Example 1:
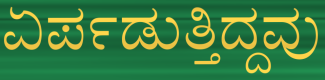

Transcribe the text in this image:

ಏರ್ಪಡುತ್ತಿದ್ದವು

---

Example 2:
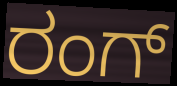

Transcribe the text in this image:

ರಂಗ್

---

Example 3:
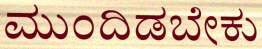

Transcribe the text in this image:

ಮುಂದಿಡಬೇಕು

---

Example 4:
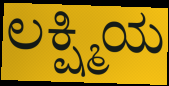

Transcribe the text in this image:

ಲಕ್ಷ್ಮಿಯ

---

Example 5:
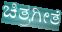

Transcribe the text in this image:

ಚಿತ್ರಗೀತೆ